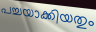
പച്ചയാക്കിയതും